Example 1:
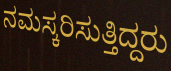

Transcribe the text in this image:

ನಮಸ್ಕರಿಸುತ್ತಿದ್ದರು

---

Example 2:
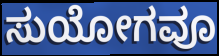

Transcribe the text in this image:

ಸುಯೋಗವೂ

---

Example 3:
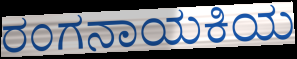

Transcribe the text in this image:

ರಂಗನಾಯಕಿಯ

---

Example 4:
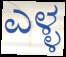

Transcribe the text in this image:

ಎಳ್ಳ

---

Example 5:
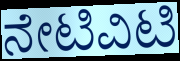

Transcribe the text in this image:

ನೇಟಿವಿಟಿ